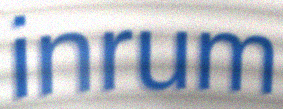
inrum